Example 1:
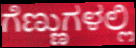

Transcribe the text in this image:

ಗೆಣ್ಣುಗಳಲ್ಲಿ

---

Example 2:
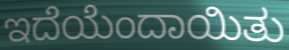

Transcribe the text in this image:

ಇದೆಯೆಂದಾಯಿತು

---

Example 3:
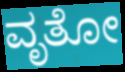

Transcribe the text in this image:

ವೃತೋ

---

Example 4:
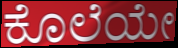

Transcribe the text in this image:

ಕೊಲೆಯೇ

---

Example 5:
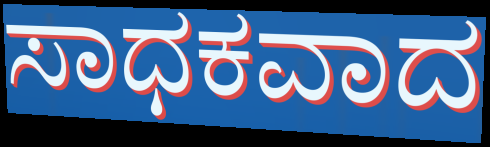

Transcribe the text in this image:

ಸಾಧಕವಾದ